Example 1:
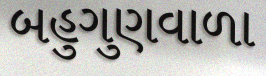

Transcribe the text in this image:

બહુગુણવાળા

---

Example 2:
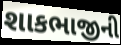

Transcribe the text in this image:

શાકભાજીની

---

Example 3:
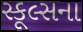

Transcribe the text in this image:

સ્કૂલ્સના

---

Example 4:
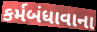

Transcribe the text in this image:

કર્મબંધાવાના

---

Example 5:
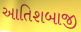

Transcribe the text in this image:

આતિશબાજી